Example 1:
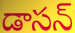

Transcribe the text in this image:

డాసన్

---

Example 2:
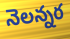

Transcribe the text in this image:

నెలన్నర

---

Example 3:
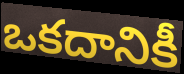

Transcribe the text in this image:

ఒకదానికీ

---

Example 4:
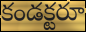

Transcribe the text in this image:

కండక్టరూ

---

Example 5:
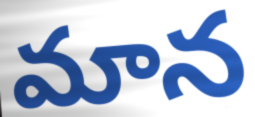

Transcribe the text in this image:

మాన